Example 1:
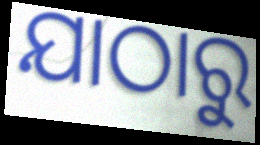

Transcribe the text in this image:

ଯାଠାରୁ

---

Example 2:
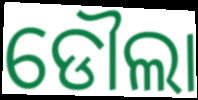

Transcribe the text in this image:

ଡୌଲା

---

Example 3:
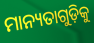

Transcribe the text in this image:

ମାନ୍ୟତାଗୁଡ଼ିକୁ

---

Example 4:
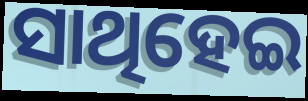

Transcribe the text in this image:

ସାଥିହେଇ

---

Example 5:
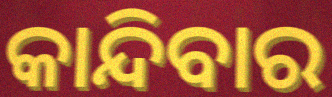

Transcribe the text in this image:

କାନ୍ଦିବାର